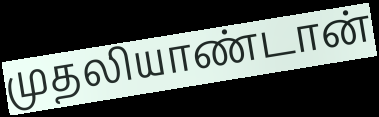
முதலியாண்டான்